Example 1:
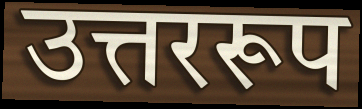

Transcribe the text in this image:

उत्तररूप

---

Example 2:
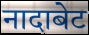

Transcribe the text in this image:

नादाबेट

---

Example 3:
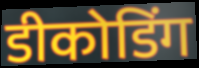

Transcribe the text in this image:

डीकोडिंग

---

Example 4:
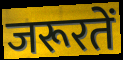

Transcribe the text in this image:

जरूरतें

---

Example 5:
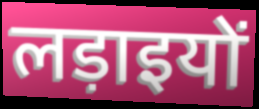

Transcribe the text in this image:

लड़ाइयों